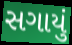
સગાયું